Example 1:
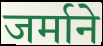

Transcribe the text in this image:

जर्माने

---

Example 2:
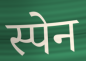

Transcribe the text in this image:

स्पेन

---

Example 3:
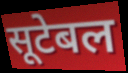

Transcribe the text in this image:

सूटेबल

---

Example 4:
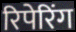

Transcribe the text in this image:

रिपेरिंग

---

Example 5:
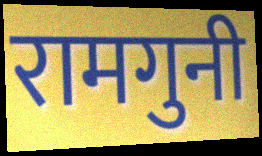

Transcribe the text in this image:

रामगुनी